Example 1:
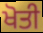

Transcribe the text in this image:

ਖੋਤੀ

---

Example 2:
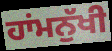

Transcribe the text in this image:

ਹਾਂਮਨੁੱਖੀ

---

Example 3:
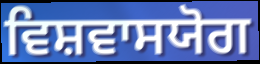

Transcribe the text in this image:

ਵਿਸ਼ਵਾਸਯੋਗ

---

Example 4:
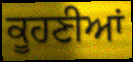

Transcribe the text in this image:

ਕੂਹਣੀਆਂ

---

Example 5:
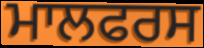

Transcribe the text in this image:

ਮਾਲਫਰਸ